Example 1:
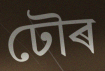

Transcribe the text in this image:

ঢৌৰ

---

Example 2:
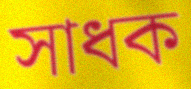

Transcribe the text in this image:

সাধক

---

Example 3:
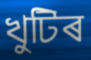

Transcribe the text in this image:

খুটিৰ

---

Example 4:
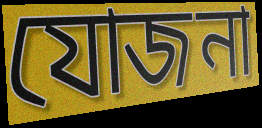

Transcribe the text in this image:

যোজনা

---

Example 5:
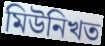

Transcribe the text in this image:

মিউনিখত